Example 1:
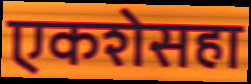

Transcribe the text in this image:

एकशेसहा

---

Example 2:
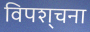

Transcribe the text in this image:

विपश्चना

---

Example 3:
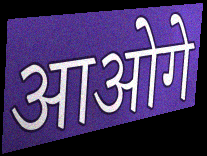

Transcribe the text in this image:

आओगे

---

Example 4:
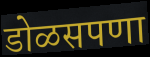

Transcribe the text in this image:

डोळसपणा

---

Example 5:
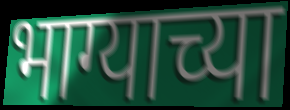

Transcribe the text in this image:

भाग्याच्या